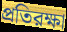
প্রতিরক্ষা